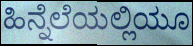
ಹಿನ್ನೆಲೆಯಲ್ಲಿಯೂ